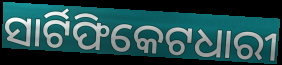
ସାର୍ଟିଫିକେଟଧାରୀ